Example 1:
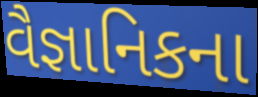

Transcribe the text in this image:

વૈજ્ઞાનિકના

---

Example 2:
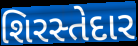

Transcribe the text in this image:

શિરસ્તેદાર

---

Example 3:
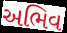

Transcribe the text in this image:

અભિવ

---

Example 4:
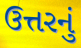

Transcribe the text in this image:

ઉત્તરનું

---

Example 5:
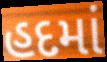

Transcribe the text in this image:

હદમાં